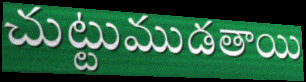
చుట్టుముడతాయి